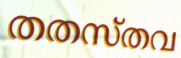
തതസ്തവ